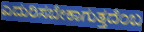
ಎದುರಿಸಬೇಕಾಗುತ್ತದೆಂಬ